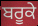
ਬਰੂਕੇ